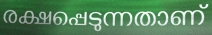
രക്ഷപ്പെടുന്നതാണ്